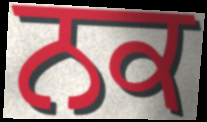
ਨਕ